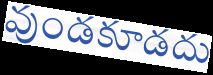
వుండకూడదు